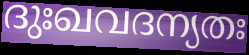
ദുഃഖവദന്യതഃ